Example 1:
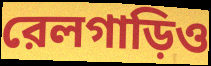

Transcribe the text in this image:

রেলগাড়িও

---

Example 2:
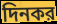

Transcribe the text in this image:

দিনকর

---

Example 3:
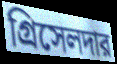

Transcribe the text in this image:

গ্রিসেলদার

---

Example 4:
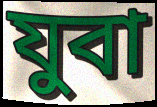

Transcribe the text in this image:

যুবা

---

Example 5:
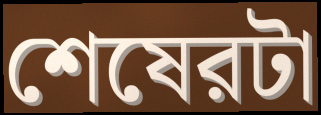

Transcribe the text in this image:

শেষেরটা